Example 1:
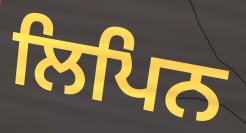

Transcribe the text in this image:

ਲਿਪਿਨ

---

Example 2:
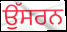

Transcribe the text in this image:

ਉੱਸਰਨ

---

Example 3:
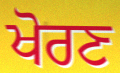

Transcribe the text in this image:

ਖੋਰਣ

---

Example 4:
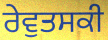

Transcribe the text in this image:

ਰੇਵੁਤਸਕੀ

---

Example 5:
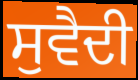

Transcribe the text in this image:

ਸੁਵੈਦੀ